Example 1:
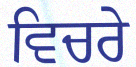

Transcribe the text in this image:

ਵਿਚਰੇ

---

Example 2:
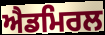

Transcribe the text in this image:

ਐਡਮਿਰਲ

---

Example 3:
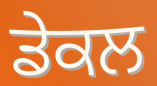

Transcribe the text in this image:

ਡੇਕਲ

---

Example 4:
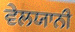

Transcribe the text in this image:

ਵੇਲਯਾਨੀ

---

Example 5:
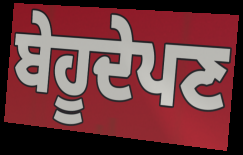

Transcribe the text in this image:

ਬੇਹੂਦੇਪਣ